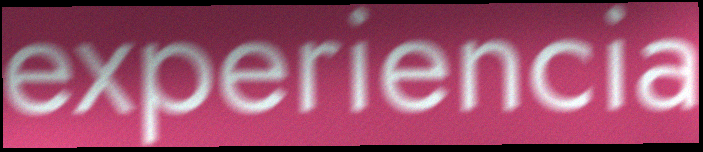
experiencia